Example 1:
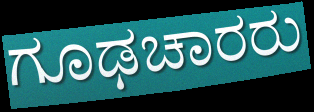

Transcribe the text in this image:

ಗೂಢಚಾರರು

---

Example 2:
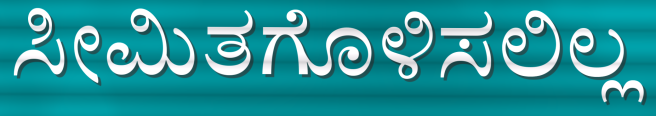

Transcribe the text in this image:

ಸೀಮಿತಗೊಳಿಸಲಿಲ್ಲ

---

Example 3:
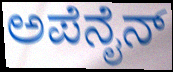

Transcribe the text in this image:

ಅಪೆನೈನ್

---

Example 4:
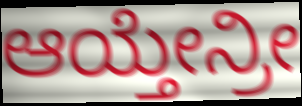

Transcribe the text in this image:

ಆಯ್ತೇನ್ರೀ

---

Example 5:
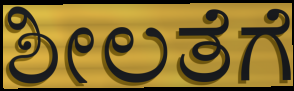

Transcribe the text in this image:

ಶೀಲತೆಗೆ